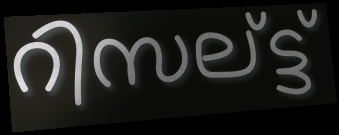
റിസല്ട്ട്